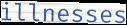
illnesses